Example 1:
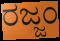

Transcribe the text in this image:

ರಜ್ಜಂ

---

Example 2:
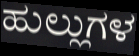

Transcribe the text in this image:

ಹುಲ್ಲುಗಳ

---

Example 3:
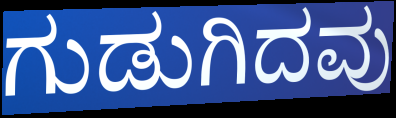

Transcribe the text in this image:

ಗುಡುಗಿದವು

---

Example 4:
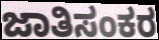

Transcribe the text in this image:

ಜಾತಿಸಂಕರ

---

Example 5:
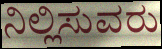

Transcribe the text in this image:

ನಿಲ್ಲಿಸುವರು